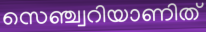
സെഞ്ച്വറിയാണിത്